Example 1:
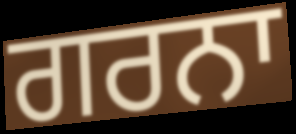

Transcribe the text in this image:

ਗਰਨਾ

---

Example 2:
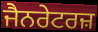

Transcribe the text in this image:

ਜੈਨਰੇਟਰਜ਼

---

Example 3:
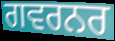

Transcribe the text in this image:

ਗਵਰਨਰ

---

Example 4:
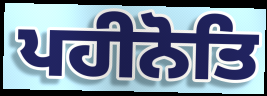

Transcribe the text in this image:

ਪਹੀਨੋਤਿ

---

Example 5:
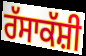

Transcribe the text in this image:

ਰੱਸਾਕੱਸ਼ੀ